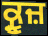
ਕ੍ਰੂਜ਼